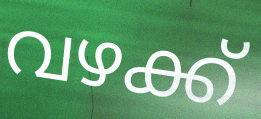
വഴക്ക്